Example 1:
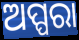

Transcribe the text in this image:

ଅପ୍ପରା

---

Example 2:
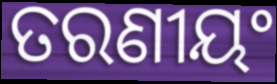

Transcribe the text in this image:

ତରଣୀୟଂ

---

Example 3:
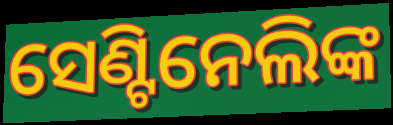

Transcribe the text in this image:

ସେଣ୍ଟିନେଲିଙ୍କ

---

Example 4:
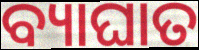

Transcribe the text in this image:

ବ୍ୟାଘାତ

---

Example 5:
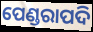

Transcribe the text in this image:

ପେଣ୍ଡରାପଦି